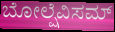
ಬೋಲ್ಷೆವಿಸಮ್